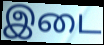
இடை